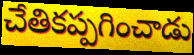
చేతికప్పగించాడు